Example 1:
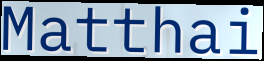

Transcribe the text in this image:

Matthai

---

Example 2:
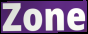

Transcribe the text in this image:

Zone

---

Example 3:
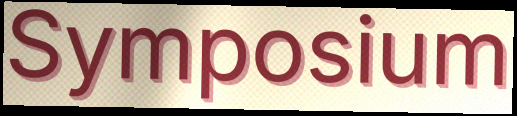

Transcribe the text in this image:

Symposium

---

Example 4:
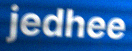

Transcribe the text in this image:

jedhee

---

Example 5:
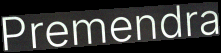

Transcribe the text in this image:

Premendra